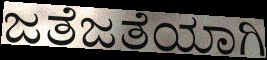
ಜತೆಜತೆಯಾಗಿ